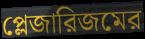
প্লেজারিজমের